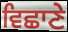
ਵਿਛਾਣੇ